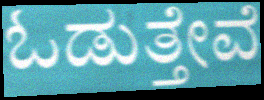
ಓಡುತ್ತೇವೆ